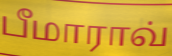
பீமாராவ்